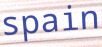
spain